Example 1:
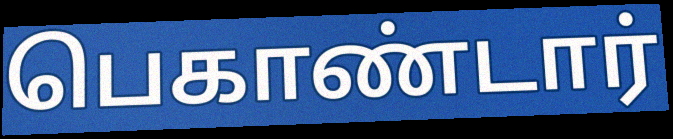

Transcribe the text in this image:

பெகாண்டார்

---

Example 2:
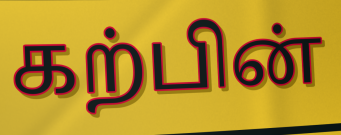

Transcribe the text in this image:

கற்பின்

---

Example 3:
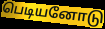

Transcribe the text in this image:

பெடியனோடு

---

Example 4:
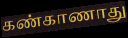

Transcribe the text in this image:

கண்காணாது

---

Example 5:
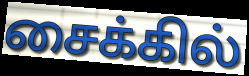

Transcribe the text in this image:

சைக்கில்